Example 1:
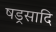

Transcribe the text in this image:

षड्रसादि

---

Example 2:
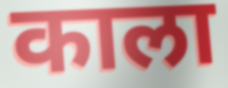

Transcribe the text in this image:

काला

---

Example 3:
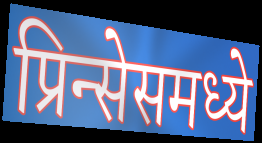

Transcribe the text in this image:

प्रिन्सेसमध्ये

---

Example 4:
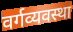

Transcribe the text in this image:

वर्गव्यवस्था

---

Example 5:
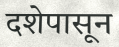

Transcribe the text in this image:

दशेपासून